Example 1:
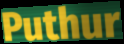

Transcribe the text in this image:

Puthur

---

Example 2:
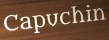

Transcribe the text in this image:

Capuchin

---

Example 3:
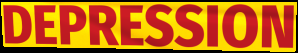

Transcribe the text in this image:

DEPRESSION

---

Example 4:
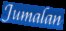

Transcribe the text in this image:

Jumalan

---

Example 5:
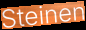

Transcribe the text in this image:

Steinen